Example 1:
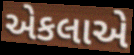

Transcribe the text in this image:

એકલાએ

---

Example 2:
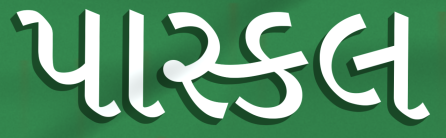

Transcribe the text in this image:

પાસ્કલ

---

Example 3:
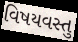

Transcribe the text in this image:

વિષયવસ્તુ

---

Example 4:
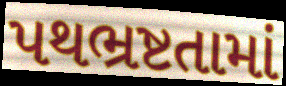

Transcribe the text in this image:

પથભ્રષ્ટતામાં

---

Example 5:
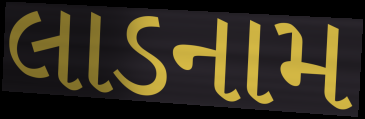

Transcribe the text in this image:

લાડનામ